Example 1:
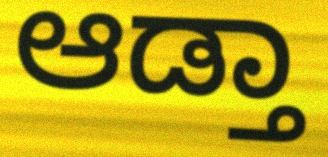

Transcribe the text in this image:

ಆಡ್ತಾ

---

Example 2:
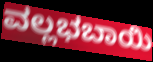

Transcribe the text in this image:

ವಲ್ಲಭಬಾಯಿ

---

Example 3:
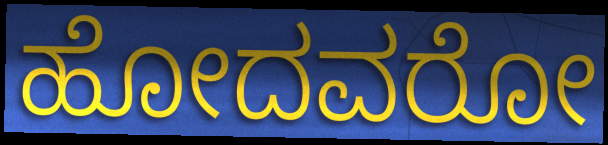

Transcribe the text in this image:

ಹೋದವರೋ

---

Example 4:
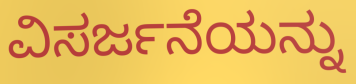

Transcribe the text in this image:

ವಿಸರ್ಜನೆಯನ್ನು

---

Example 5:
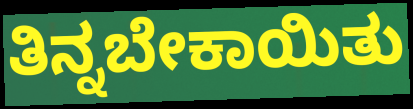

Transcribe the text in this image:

ತಿನ್ನಬೇಕಾಯಿತು